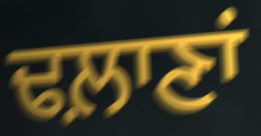
ਢਲ਼ਾਣਾਂ